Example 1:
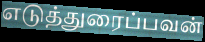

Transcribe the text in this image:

எடுத்துரைப்பவன்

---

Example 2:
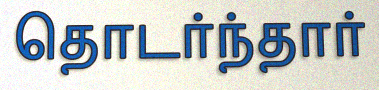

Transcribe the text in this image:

தொடர்ந்தார்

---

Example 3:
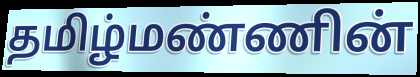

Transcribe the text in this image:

தமிழ்மண்ணின்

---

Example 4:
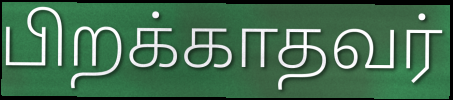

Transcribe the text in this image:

பிறக்காதவர்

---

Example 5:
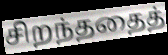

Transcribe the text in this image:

சிறந்ததைத்